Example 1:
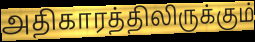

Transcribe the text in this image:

அதிகாரத்திலிருக்கும்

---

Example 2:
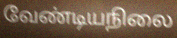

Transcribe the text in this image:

வேண்டியநிலை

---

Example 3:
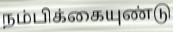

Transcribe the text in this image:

நம்பிக்கையுண்டு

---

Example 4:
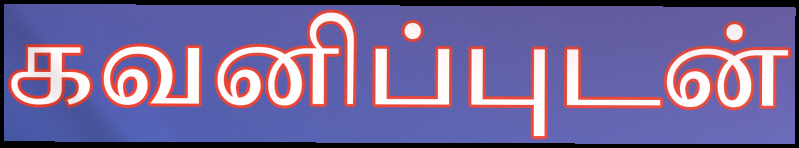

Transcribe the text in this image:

கவனிப்புடன்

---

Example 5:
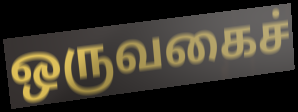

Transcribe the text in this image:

ஒருவகைச்